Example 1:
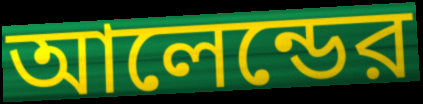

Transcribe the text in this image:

আলেন্ডের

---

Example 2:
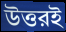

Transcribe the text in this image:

উত্তরই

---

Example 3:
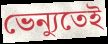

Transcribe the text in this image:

ভেন্যুতেই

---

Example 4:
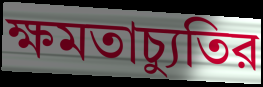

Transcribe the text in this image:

ক্ষমতাচ্যুতির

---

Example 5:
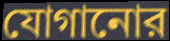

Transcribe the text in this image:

যোগানোর